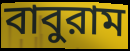
বাবুরাম